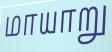
மாயாறு